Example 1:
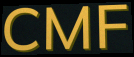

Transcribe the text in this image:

CMF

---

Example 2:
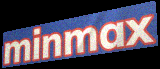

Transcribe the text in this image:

minmax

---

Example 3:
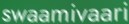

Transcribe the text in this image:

swaamivaari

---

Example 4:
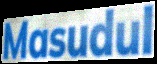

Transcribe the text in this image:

Masudul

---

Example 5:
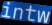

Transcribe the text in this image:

intw